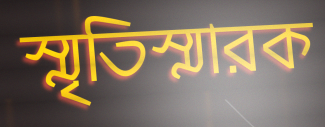
স্মৃতিস্মারক